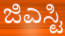
ಜಿಎಸ್ಟಿ